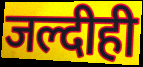
जल्दीही